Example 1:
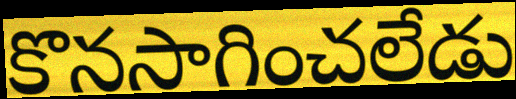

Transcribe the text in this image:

కొనసాగించలేడు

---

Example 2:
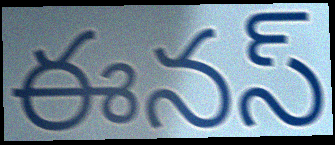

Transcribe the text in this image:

ఈనస్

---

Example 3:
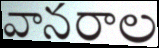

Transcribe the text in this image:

వానరాల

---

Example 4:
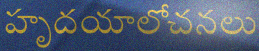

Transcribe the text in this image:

హృదయాలోచనలు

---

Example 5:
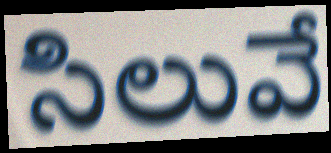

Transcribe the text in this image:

సిలువే